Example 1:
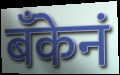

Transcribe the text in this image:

बॅंकेनं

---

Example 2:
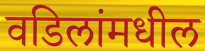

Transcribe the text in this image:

वडिलांमधील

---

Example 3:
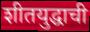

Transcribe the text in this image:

शीतयुद्धाची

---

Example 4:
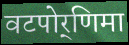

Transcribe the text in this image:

वटपोर्णिमा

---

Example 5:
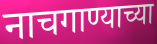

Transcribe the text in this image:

नाचगाण्याच्या